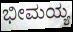
ಭೀಮಯ್ಯ